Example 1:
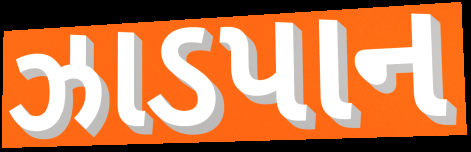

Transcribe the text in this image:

ઝાડપાન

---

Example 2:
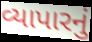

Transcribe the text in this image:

વ્યાપારનું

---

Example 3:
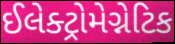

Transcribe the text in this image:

ઈલેક્ટ્રોમેગ્નેટિક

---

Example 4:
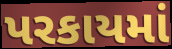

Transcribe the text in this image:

પરકાયમાં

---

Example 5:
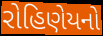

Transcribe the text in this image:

રોહિણેયનો